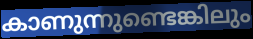
കാണുന്നുണ്ടെങ്കിലും